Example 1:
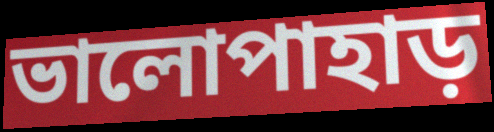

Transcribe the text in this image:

ভালোপাহাড়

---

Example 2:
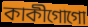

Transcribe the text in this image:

কাকীগোগো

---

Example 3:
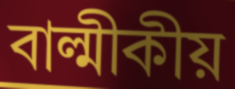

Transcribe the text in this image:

বাল্মীকীয়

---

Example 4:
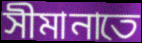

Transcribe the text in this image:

সীমানাতে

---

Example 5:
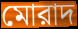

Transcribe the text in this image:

মোরাদ